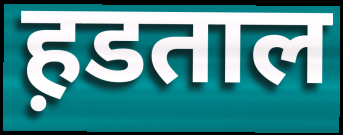
ह़डताल